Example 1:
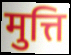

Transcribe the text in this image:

मुत्ति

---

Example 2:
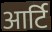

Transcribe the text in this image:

आर्टि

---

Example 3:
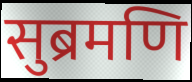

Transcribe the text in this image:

सुब्रमणि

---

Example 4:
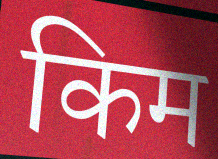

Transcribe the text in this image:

किम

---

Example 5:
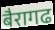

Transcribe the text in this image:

बैरागढ